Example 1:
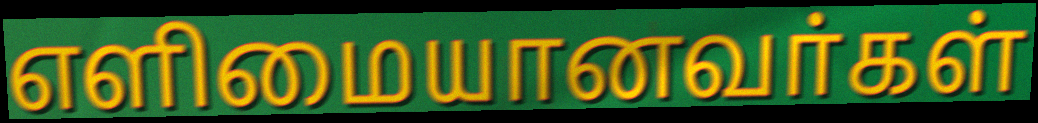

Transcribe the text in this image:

எளிமையானவர்கள்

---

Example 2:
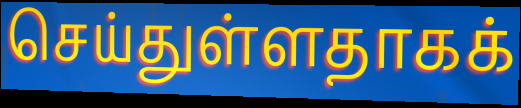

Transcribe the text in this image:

செய்துள்ளதாகக்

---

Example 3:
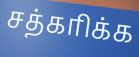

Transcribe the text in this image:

சத்கரிக்க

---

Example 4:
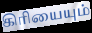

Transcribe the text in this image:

கிரியையும்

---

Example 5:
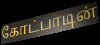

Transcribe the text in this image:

கோட்பாடின்